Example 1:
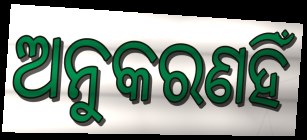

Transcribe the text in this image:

ଅନୁକରଣହିଁ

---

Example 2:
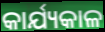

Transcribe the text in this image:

କାର୍ଯ୍ୟକାଳ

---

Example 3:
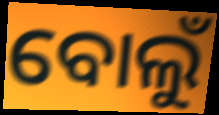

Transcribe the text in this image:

ବୋଲୁଁ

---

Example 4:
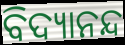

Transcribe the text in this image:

ବିଦ୍ୟାନନ୍ଦ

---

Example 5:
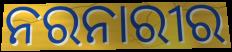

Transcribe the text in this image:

ନରନାରୀର